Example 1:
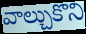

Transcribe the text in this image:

వాల్చుకొని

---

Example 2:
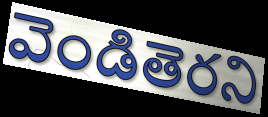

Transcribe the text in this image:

వెండితెరని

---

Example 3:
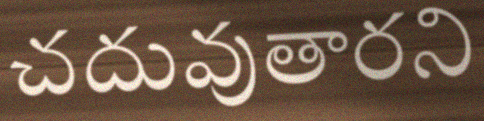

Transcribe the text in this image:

చదువుతారని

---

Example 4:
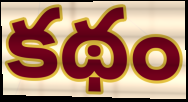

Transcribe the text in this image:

కథం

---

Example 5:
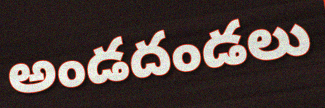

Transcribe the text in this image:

అండదండలు